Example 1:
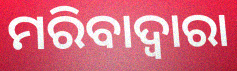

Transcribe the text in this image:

ମରିବାଦ୍ୱାରା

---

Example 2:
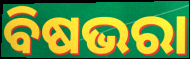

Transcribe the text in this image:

ବିଷଭରା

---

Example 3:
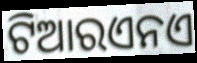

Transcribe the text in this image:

ଟିଆରଏନଏ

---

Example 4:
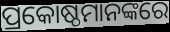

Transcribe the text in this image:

ପ୍ରକୋଷ୍ଠମାନଙ୍କରେ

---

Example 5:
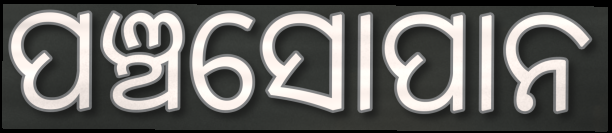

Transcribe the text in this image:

ପଞ୍ଚସୋପାନ